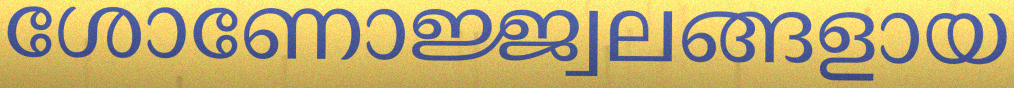
ശോണോജ്ജ്വലങ്ങളായ